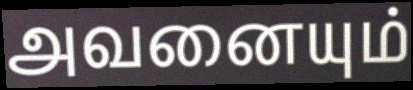
அவனையும்